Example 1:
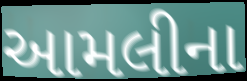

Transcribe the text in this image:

આમલીના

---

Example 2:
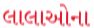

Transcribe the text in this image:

લાલાઓના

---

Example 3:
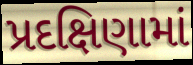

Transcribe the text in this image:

પ્રદક્ષિણામાં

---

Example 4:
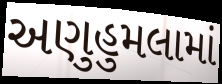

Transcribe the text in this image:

અણુહુમલામાં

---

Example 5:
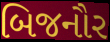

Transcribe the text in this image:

બિજનૌર